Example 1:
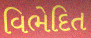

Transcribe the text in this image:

વિભેદિત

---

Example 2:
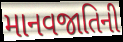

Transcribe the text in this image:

માનવજાતિની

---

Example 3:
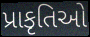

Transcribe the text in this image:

પ્રાકૃતિઓ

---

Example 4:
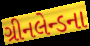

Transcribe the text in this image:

ગ્રીનલેન્ડના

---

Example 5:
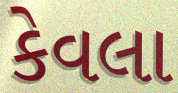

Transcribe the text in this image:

કેવલા